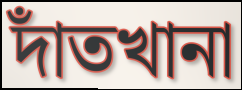
দাঁতখানা